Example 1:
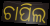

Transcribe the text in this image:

ଚାପିଲ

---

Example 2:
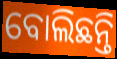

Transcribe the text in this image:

ବୋଲିଛନ୍ତି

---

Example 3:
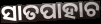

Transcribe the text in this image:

ସାତପାହାଚ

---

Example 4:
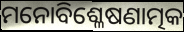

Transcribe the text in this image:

ମନୋବିଶ୍ଳେଷଣାତ୍ମକ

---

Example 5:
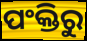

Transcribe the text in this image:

ପଂକ୍ତିରୁ